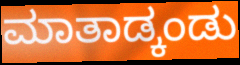
ಮಾತಾಡ್ಕಂಡು